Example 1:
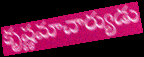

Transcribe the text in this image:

కృష్ణమాచార్యుడు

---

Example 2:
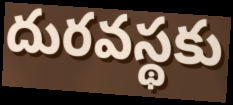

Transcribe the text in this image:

దురవస్థకు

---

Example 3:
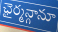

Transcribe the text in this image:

ఛైర్మన్గానూ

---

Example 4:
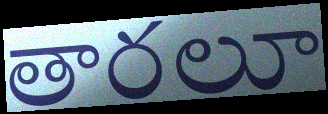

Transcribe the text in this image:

తారలూ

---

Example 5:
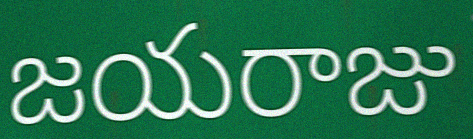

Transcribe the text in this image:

జయరాజు